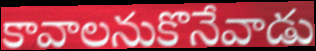
కావాలనుకొనేవాడు